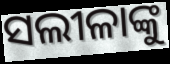
ସଲୀଳାଙ୍କୁ